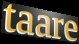
taare